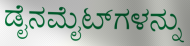
ಡೈನಮೈಟ್‌ಗಳನ್ನು